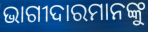
ଭାଗୀଦାରମାନଙ୍କୁ